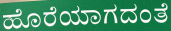
ಹೊರೆಯಾಗದಂತೆ